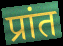
प्रांत